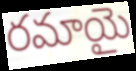
రమాయై